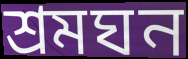
শ্রমঘন